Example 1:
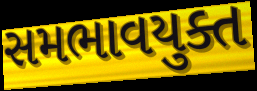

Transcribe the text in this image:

સમભાવયુક્ત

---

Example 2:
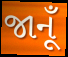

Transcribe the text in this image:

જાનૂઁ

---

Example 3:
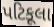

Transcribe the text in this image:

પટિકૂલા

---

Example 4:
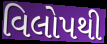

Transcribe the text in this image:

વિલોપથી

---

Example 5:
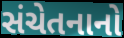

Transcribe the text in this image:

સંચેતનાનો